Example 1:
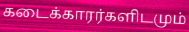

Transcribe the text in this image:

கடைக்காரர்களிடமும்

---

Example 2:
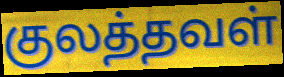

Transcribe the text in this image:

குலத்தவள்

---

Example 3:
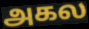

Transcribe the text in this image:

அகல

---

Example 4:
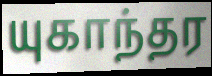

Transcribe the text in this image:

யுகாந்தர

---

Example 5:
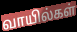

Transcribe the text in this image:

வாயில்கள்